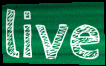
live